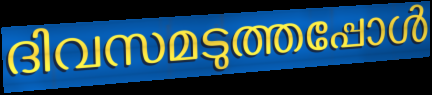
ദിവസമടുത്തപ്പോൾ